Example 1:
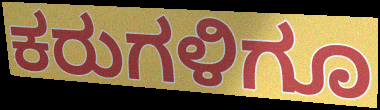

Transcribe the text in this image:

ಕರುಗಳಿಗೂ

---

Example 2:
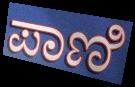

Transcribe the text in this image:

ಪಾಣಿ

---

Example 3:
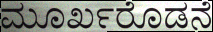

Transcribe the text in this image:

ಮೂರ್ಖರೊಡನೆ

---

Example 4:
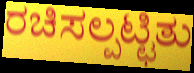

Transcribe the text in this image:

ರಚಿಸಲ್ಪಟ್ಟಿತು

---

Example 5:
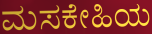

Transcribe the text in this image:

ಮಸಕೇಹಿಯ